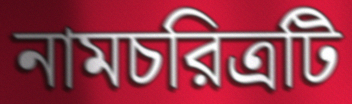
নামচরিত্রটি